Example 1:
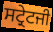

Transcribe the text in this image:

ਸਟ੍ਰੇਟਜੀ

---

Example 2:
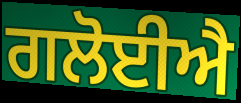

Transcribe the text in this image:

ਗਲੋਈਐ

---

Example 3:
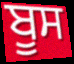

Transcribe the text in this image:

ਬੂਸ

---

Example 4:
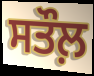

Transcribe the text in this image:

ਸਤੌਲ਼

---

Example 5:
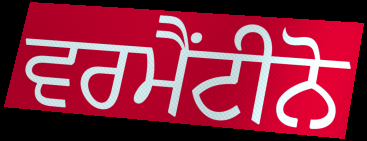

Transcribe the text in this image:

ਵਰਮੈਂਟੀਨੋ